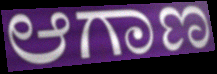
ಆಗಾಣ